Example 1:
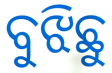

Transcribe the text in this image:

ବୁଝିଛୁ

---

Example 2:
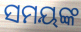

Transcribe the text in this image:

ସମୟଙ୍କ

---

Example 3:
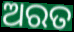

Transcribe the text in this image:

ଅରତ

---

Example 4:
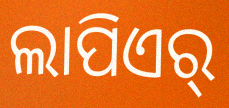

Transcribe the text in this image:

ଲାପିଏର୍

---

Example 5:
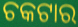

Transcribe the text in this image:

ଚକଟାର